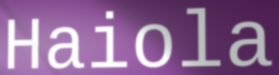
Haiola